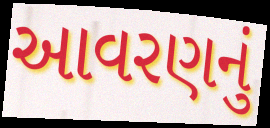
આવરણનું